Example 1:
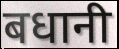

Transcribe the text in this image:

बधानी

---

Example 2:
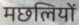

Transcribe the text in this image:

मछलियों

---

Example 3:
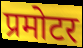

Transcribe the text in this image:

प्रमोटर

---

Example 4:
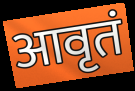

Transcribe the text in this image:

आवृतं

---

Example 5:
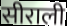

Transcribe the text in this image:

सीराली